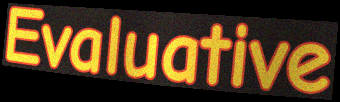
Evaluative